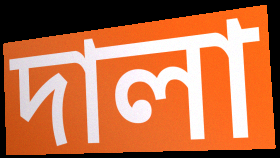
দালা